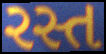
રસ્ત